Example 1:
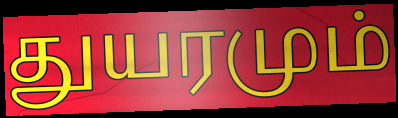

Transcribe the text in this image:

துயரமும்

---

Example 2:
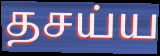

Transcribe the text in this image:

தசய்ய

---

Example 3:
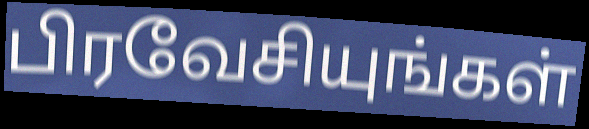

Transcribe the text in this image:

பிரவேசியுங்கள்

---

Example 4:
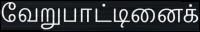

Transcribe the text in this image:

வேறுபாட்டினைக்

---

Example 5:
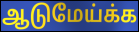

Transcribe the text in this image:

ஆடுமேய்க்க